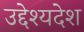
उद्देश्यदेश